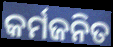
କର୍ମଜନିତ